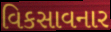
વિકસાવનાર